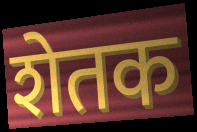
शेतक